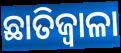
ଛାତିଜ୍ୱାଳା